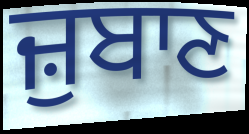
ਜ਼ੁਬਾਣ